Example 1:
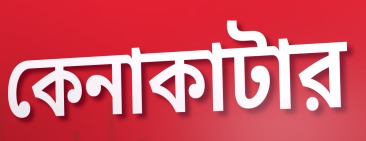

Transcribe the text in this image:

কেনাকাটার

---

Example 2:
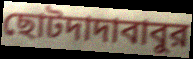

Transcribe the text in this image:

ছোটদাদাবাবুর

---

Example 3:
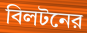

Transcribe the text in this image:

বিলটনের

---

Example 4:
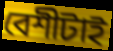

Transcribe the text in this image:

বেশীটাই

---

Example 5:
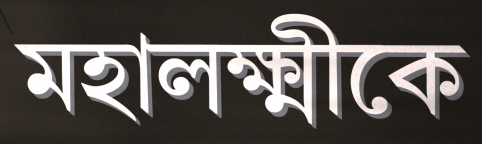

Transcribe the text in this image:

মহালক্ষ্মীকে